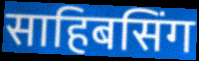
साहिबसिंग